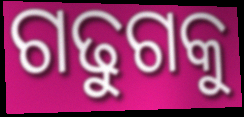
ଗଢୁଗକୁ